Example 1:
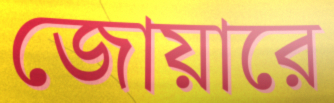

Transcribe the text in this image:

জোয়ারে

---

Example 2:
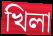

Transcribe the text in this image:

খিলা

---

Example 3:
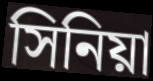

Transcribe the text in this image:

সিনিয়া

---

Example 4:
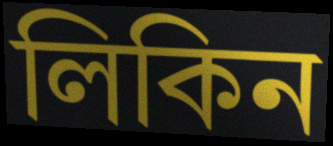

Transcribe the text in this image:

লিকিন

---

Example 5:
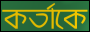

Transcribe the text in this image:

কর্তাকে